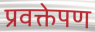
प्रवक्तेपण